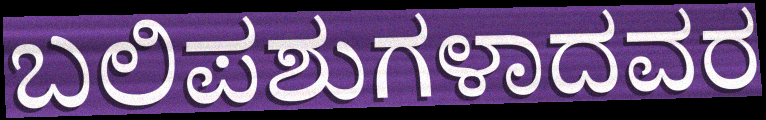
ಬಲಿಪಶುಗಳಾದವರ